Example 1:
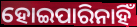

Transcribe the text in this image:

ହୋଇପାରିନାହିଁ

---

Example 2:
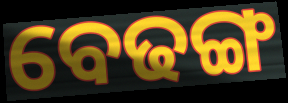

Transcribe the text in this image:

ବେଢଙ୍ଗ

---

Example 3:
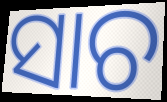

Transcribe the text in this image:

ସାଚ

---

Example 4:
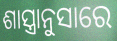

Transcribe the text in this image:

ଶାସ୍ତ୍ରାନୁସାରେ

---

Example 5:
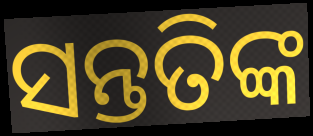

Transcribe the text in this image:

ସନ୍ତତିଙ୍କ